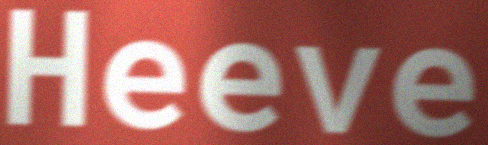
Heeve